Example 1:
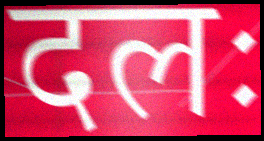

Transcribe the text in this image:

दलः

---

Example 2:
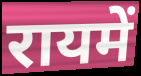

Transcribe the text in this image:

रायमें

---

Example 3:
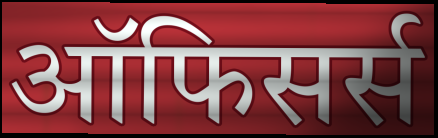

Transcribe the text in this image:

ऑफिसर्स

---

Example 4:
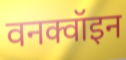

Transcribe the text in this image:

वनक्वॉइन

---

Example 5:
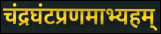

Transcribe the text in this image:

चंद्रघंटप्रणमाभ्यहम्